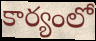
కార్యంలో